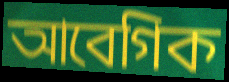
আবেগিক